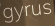
gyrus